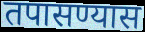
तपासण्यास